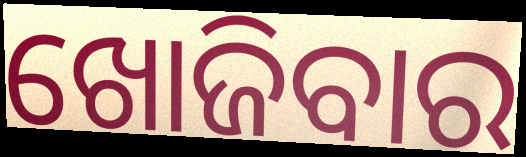
ଖୋଜିବାର